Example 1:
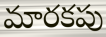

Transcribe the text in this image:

మారకపు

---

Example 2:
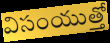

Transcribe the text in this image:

విసంయుత్తో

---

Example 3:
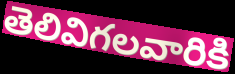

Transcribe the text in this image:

తెలివిగలవారికి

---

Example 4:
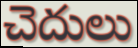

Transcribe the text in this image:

చెదులు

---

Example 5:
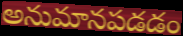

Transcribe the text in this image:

అనుమానపడడం